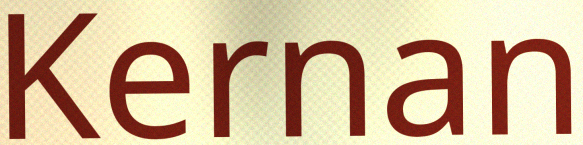
Kernan